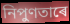
নিপুণতাৰে